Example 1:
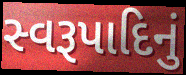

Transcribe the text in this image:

સ્વરૂપાદિનું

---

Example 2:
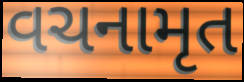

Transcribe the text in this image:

વચનામૃત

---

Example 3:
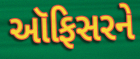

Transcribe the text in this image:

ઑફિસરને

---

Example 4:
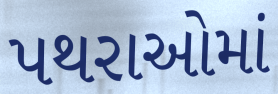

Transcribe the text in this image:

પથરાઓમાં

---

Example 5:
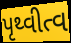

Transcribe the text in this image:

પૃથ્વીત્વ